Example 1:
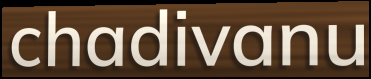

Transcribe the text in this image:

chadivanu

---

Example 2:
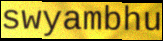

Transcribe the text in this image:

swyambhu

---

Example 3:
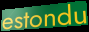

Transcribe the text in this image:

estondu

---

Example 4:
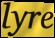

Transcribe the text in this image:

lyre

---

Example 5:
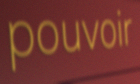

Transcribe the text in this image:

pouvoir